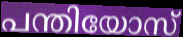
പന്തിയോസ്